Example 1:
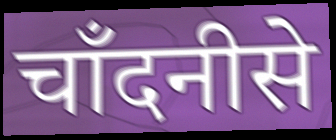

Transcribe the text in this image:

चाँदनीसे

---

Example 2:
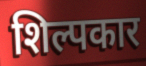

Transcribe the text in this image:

शिल्पकार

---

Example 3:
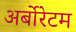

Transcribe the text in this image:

अर्बोरेटम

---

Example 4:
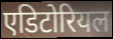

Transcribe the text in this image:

एडिटोरियल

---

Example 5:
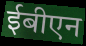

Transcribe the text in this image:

ईबीएन